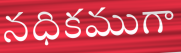
నధికముగా